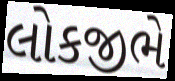
લોકજીભે